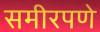
समीरपणे